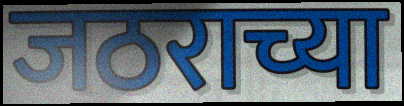
जठराच्या